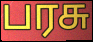
பரசு